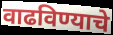
वाढविण्याचे